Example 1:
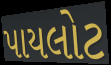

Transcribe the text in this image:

પાયલોટ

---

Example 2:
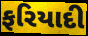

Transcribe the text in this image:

ફરિયાદી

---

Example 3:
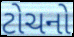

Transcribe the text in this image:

ટોચનો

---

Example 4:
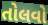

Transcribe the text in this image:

તોલવો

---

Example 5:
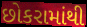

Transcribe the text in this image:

છોકરામાંથી